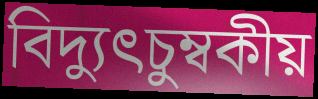
বিদ্যুৎচুম্বকীয়